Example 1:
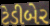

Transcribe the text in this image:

ટેડીબેર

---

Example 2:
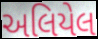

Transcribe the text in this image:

અલિયેલ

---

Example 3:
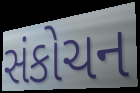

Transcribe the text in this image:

સંકોચન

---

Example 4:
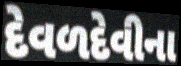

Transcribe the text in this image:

દેવળદેવીના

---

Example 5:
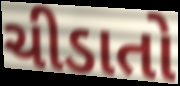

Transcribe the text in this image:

ચીડાતો